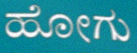
ಹೋಗು